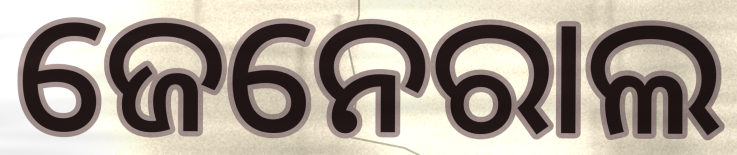
ଜେନେରାଲ